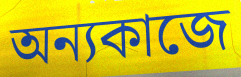
অন্যকাজে